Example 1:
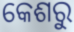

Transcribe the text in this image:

କେଶରୁ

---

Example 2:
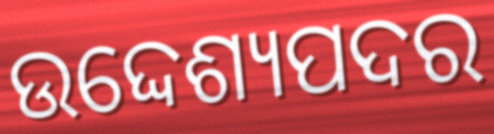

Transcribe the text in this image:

ଉଦ୍ଦେଶ୍ୟପଦର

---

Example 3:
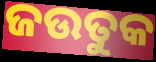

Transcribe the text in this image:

ଜଉତୁକ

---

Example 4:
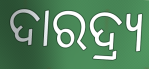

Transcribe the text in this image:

ଦାରଦ୍ର୍ୟ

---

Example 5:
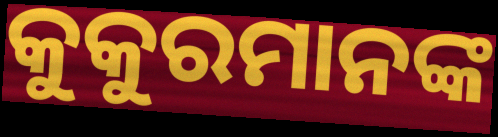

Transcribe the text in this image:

କୁକୁରମାନଙ୍କ